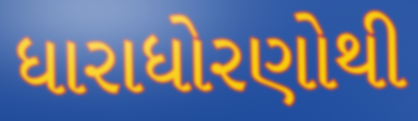
ધારાધોરણોથી